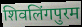
शिवलिंगपुरम